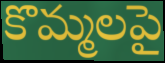
కొమ్మలపై